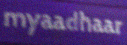
myaadhaar